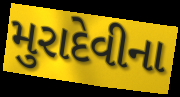
મુરાદેવીના